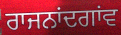
ਰਾਜਨਾਂਦਗਾਂਵ